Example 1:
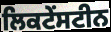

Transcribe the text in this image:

ਲਿਕਟੇਂਸਟੀਨ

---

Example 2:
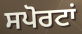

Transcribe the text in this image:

ਸਪੋਰਟਾਂ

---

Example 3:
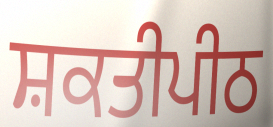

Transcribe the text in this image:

ਸ਼ਕਤੀਪੀਠ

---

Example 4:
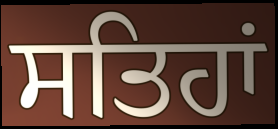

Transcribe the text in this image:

ਸਤਿਹਾਂ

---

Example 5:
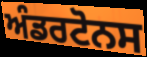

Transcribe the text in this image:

ਅੰਡਰਟੋਨਸ